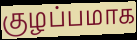
குழப்பமாக